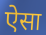
ऐेसा